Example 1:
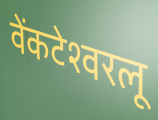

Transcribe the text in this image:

वेंकटेश्वरलू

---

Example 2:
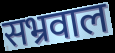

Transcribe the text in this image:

सभ्रवाल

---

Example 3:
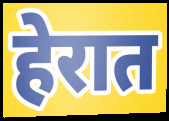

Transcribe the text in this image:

हेरात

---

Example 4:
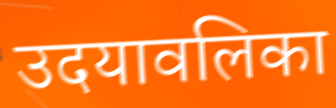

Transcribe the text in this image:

उदयावलिका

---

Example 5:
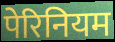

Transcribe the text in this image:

पेरिनियम